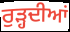
ਰੁੜ੍ਹਦੀਆਂ